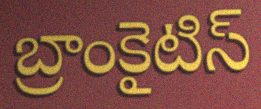
బ్రాంకైటిస్